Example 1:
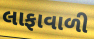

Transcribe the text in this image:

લાફાવાળી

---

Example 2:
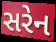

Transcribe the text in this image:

સરેન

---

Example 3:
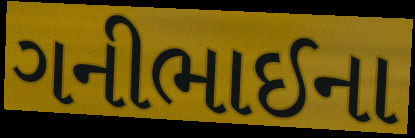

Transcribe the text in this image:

ગનીભાઈના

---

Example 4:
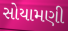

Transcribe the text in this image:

સોયામણી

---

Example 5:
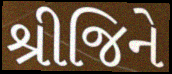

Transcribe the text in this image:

શ્રીજિને